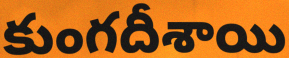
కుంగదీశాయి